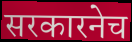
सरकारनेच